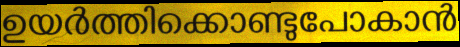
ഉയർത്തിക്കൊണ്ടുപോകാൻ